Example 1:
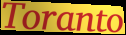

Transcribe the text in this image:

Toranto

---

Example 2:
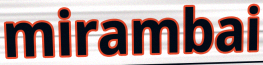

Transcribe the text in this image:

mirambai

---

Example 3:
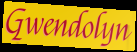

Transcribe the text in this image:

Gwendolyn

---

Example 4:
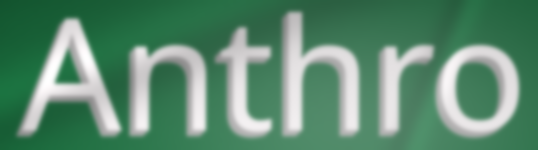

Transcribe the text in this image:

Anthro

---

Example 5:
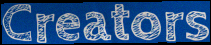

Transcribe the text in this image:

Creators